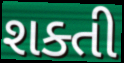
શક્તી